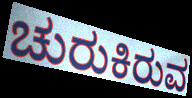
ಚುರುಕಿರುವ